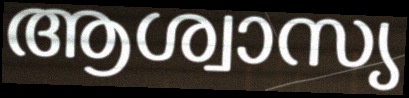
ആശ്വാസ്യ